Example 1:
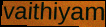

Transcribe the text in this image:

vaithiyam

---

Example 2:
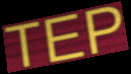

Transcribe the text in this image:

TEP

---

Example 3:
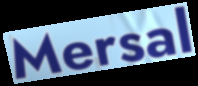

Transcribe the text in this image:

Mersal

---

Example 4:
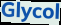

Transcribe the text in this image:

Glycol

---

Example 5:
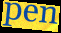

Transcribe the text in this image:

pen